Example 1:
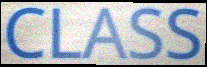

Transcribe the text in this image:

CLASS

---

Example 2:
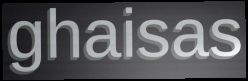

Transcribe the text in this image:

ghaisas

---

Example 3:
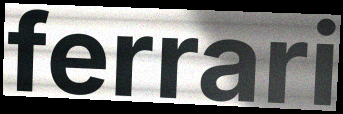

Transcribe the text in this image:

ferrari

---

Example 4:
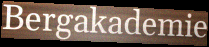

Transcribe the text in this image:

Bergakademie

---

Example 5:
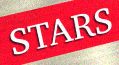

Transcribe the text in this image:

STARS